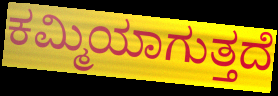
ಕಮ್ಮಿಯಾಗುತ್ತದೆ